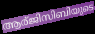
ആര്ജിസിബിയുടെ